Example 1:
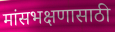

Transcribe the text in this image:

मांसभक्षणासाठी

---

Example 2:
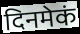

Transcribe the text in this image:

दिनमेकं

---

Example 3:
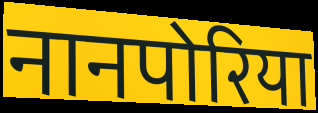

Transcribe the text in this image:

नानपोरिया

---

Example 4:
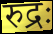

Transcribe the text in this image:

रुद्रः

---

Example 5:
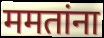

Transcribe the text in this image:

ममतांना